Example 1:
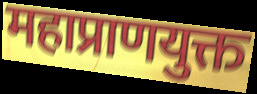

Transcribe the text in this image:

महाप्राणयुक्त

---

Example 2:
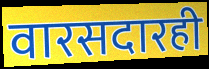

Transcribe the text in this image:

वारसदारही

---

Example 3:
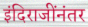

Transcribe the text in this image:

इंदिराजींनंतर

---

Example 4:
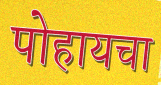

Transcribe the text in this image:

पोहायचा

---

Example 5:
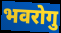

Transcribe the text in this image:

भवरोगु